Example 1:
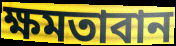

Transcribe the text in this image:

ক্ষমতাবান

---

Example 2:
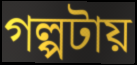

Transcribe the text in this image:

গল্পটায়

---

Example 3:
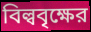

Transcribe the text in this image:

বিল্ববৃক্ষের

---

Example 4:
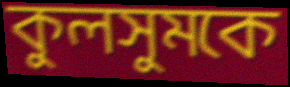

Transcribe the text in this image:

কুলসুমকে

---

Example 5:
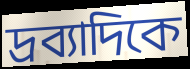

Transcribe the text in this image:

দ্রব্যাদিকে